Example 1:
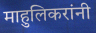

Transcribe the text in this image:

माहुलिकरांनी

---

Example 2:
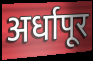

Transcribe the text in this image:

अर्धापूर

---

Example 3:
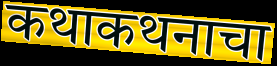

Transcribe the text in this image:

कथाकथनाचा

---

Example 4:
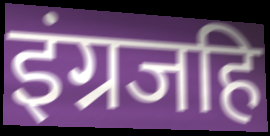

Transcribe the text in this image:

इंग्रजहि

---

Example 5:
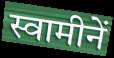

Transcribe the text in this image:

स्वामीनें